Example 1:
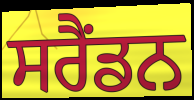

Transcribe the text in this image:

ਸਰੈਂਡਨ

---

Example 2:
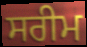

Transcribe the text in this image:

ਸਰੀਮ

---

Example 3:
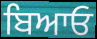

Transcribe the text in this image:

ਬਿਆਓ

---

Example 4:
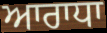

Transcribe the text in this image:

ਆਰਾਧਾ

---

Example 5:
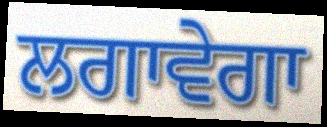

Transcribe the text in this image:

ਲਗਾਵੇਗਾ